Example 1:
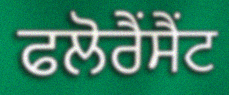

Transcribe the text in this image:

ਫਲੋਰੈਂਸੈਂਟ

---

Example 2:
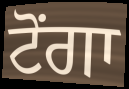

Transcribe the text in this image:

ਟੋਂਗਾ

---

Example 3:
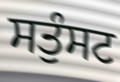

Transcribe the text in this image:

ਸਤੁੰਸਟ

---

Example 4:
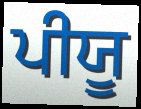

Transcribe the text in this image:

ਪੀਯੂ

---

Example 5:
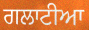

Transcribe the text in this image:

ਗਲਾਟੀਆ